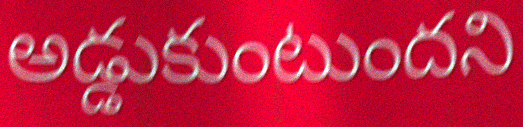
అడ్డుకుంటుందని